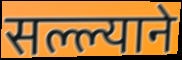
सल्ल्याने